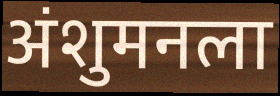
अंशुमनला